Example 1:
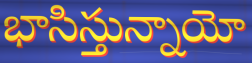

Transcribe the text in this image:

భాసిస్తున్నాయో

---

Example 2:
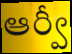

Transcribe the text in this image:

ఆర్వీ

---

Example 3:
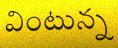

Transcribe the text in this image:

వింటున్న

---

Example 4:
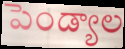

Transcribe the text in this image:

పెండ్యాల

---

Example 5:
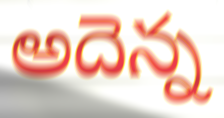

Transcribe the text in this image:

అదెన్న